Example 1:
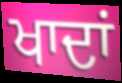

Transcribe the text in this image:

ਖਾਦਾਂ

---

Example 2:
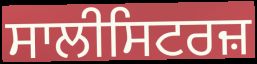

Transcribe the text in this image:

ਸਾਲੀਸਿਟਰਜ਼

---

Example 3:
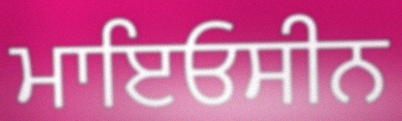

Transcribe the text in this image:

ਮਾਇਓਸੀਨ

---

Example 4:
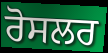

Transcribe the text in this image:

ਰੋਸਲਰ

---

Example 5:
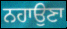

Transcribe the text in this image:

ਨਹਾਉਣਾ